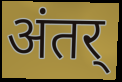
अंतर्